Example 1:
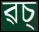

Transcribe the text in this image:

ৱচ্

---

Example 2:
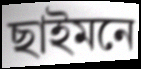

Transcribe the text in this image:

ছাইমনে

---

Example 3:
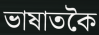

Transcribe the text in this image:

ভাষাতকৈ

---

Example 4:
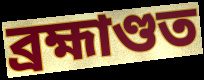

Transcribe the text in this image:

ব্ৰহ্মাণ্ডত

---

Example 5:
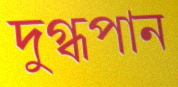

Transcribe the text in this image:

দুগ্ধপান